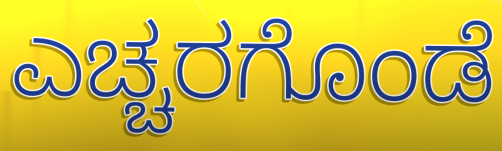
ಎಚ್ಚರಗೊಂಡೆ